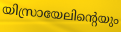
യിസ്രായേലിന്റെയും